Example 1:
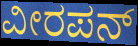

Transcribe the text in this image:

ವೀರಪನ್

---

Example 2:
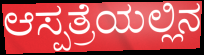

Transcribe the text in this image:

ಆಸ್ಪತ್ರೆಯಲ್ಲಿನ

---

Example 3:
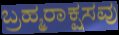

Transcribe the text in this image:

ಬ್ರಹ್ಮರಾಕ್ಷಸವು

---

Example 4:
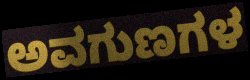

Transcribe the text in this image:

ಅವಗುಣಗಳ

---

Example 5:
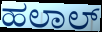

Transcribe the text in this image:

ಹಲಾಲ್